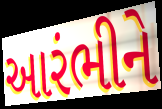
આરંભીને